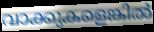
വാക്കുകളെങ്കിൽ